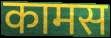
कामस